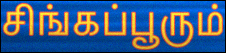
சிங்கப்பூரும்